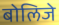
बोलिजे